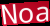
Noa